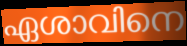
ഏശാവിനെ